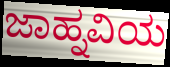
ಜಾಹ್ನವಿಯ